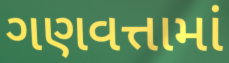
ગણવત્તામાં